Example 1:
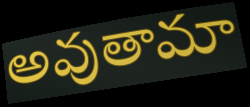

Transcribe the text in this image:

అవుతామా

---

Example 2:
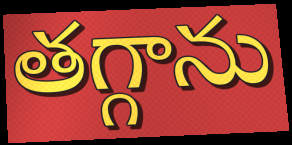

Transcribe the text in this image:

తగ్గాను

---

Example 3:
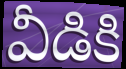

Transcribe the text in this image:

వీడికి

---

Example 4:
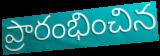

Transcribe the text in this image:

ప్రారంభించిన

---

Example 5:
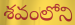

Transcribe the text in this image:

శవంలోని